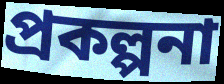
প্রকল্পনা